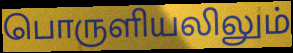
பொருளியலிலும்